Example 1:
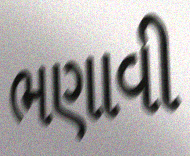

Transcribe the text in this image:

ભણાવી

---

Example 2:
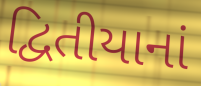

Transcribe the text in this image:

દ્વિતીયાનાં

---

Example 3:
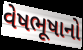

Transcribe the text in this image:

વેષભૂષાનો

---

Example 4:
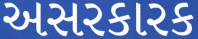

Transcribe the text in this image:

અસરકારક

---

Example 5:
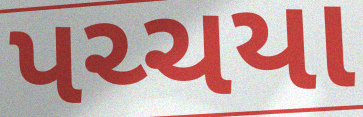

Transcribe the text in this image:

પચ્ચયા